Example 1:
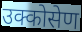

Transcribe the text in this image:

उक्कोसेण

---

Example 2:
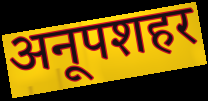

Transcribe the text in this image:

अनूपशहर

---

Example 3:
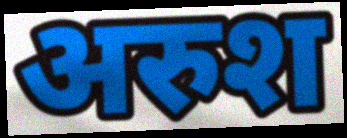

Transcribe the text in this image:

अरुश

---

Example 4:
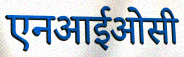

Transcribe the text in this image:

एनआईओसी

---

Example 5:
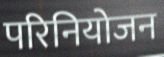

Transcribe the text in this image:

परिनियोजन